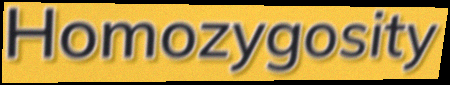
Homozygosity